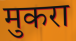
मुकरा